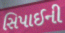
સિપાઈની